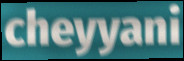
cheyyani